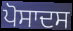
ਪੋਸਾਦਸ